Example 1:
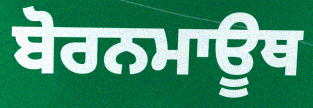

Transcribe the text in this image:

ਬੋਰਨਮਾਊਥ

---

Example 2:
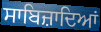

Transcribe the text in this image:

ਸਾਬਿਜ਼ਾਦਿਆਂ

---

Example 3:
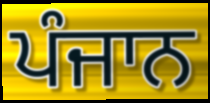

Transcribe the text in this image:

ਪੰਜਾਨ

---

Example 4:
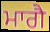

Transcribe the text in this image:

ਮਾਗੈ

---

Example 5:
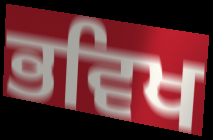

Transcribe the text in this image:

ਭਵਿਖ